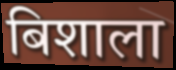
बिशाला